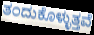
ತಂದುಕೊಳ್ಳುತ್ತವೆ